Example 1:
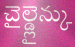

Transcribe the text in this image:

చైల్డ్లైన్కు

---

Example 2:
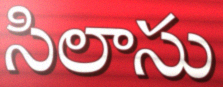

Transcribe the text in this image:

సిలాసు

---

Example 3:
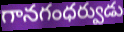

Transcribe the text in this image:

గానగంధర్వుడు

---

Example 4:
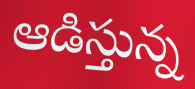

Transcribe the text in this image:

ఆడిస్తున్న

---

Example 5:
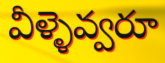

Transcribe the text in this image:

వీళ్ళెవ్వరూ